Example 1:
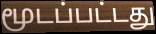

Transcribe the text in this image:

மூடப்பட்டது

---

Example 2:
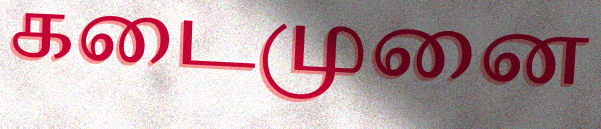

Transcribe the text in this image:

கடைமுனை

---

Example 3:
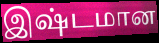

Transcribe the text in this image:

இஷ்டமான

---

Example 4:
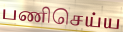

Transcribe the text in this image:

பணிசெய்ய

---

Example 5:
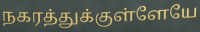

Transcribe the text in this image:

நகரத்துக்குள்ளேயே